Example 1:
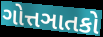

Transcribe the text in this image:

ગોત્તઞાતકો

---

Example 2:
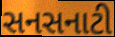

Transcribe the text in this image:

સનસનાટી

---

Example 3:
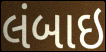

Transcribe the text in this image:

લંબાઇ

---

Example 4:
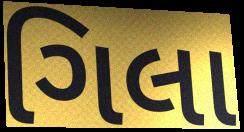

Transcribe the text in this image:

ગિલા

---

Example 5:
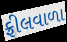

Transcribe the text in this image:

ફ્રીલવાળા